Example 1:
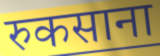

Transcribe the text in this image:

रुकसाना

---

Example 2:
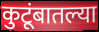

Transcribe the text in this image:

कुटूंबातल्या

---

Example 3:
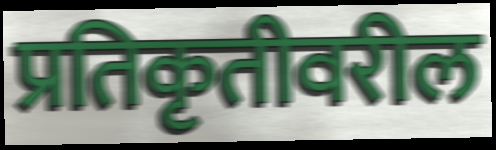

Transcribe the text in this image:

प्रतिकृतीवरील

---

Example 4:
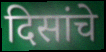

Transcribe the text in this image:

दिसांचे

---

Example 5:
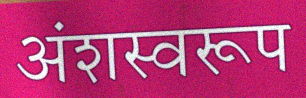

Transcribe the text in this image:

अंशस्वरूप